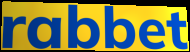
rabbet